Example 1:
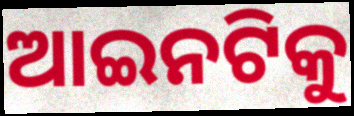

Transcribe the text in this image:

ଆଇନଟିକୁ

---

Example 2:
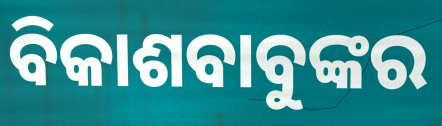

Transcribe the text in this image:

ବିକାଶବାବୁଙ୍କର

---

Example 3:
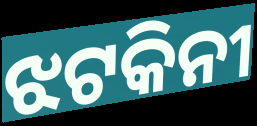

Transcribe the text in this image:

ଝଟକିନୀ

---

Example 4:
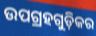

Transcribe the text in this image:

ଉପଗ୍ରହଗୁଡ଼ିକର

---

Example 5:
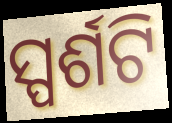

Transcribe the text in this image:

ସ୍ପର୍ଶଟି